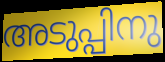
അടുപ്പിനു